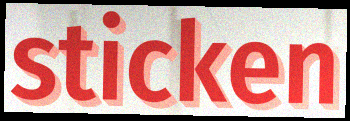
sticken